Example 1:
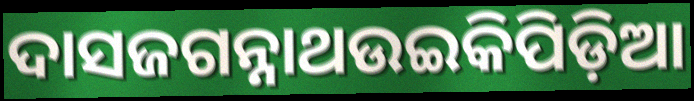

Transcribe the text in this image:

ଦାସଜଗନ୍ନାଥଉଇକିପିଡ଼ିଆ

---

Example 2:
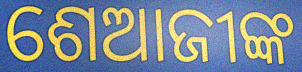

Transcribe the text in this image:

ଶେଆଜୀଙ୍କ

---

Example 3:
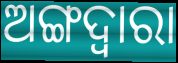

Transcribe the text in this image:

ଅଙ୍ଗଦ୍ଵାରା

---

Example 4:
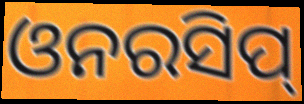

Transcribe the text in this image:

ଓନରସିପ୍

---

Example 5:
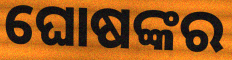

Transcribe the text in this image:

ଘୋଷଙ୍କର